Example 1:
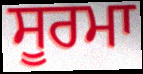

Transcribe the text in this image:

ਸੂਰਮਾ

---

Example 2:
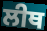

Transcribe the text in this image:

ਲੀਥ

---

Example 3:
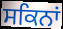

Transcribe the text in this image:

ਸਕਿਨਾਂ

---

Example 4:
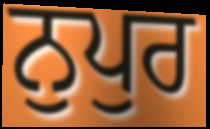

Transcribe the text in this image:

ਨੁਪੁਰ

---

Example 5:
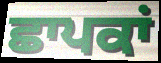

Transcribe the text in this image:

ਛਾਪਕਾਂ